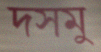
দসমু